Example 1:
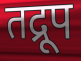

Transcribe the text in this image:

तद्रूप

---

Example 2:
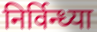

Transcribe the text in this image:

निर्विन्ध्या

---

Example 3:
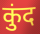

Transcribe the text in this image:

कुंद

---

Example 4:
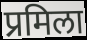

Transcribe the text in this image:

प्रमिला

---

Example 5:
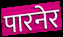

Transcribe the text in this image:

पारनेर